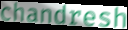
chandresh